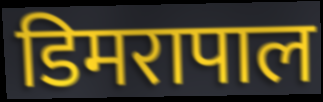
डिमरापाल